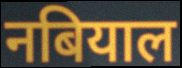
नबियाल